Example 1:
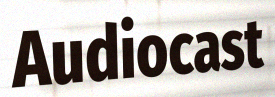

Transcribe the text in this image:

Audiocast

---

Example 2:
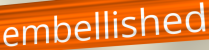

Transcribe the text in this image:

embellished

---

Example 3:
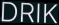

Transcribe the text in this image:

DRIK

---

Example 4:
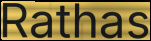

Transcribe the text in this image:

Rathas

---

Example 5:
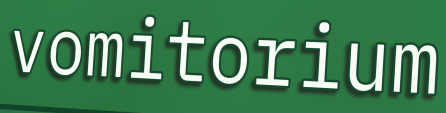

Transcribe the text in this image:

vomitorium